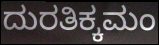
ದುರತಿಕ್ಕಮಂ